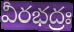
వీరభద్రః